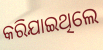
କରିଯାଇଥିଲେ